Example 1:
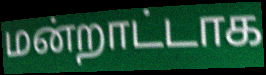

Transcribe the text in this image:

மன்றாட்டாக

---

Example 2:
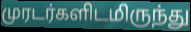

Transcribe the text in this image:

முரடர்களிடமிருந்து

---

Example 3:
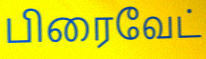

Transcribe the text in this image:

பிரைவேட்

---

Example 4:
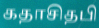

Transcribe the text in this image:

கதாசிதபி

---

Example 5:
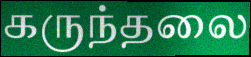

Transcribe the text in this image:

கருந்தலை